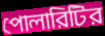
পোলারিটির